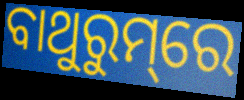
ବାଥୁରୁମ୍‌ରେ